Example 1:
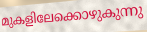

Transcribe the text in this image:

മുകളിലേക്കൊഴുകുന്നു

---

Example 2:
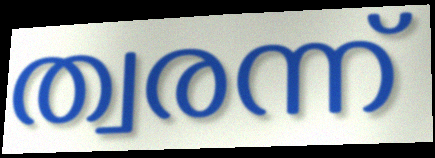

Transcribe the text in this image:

ത്വരന്ന്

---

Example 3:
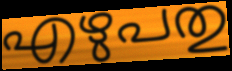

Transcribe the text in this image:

എഴുപതു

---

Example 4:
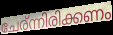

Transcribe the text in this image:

ചേര്ന്നിരിക്കണം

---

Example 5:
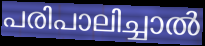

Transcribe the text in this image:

പരിപാലിച്ചാൽ